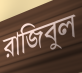
রাজিবুল